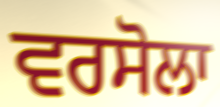
ਵਰਸੋਲਾ